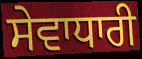
ਸੇਵਾਧਾਰੀ